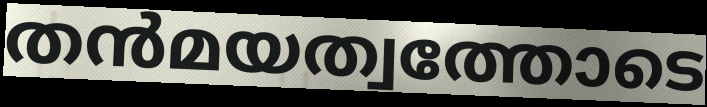
തൻമയത്വത്തോടെ